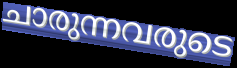
ചാരുന്നവരുടെ